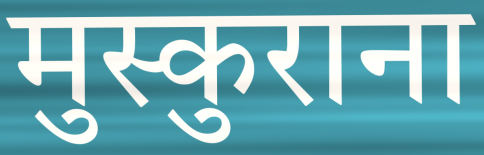
मुस्कुराना